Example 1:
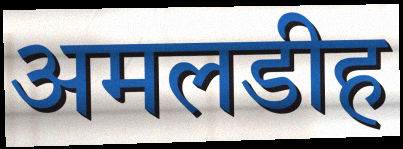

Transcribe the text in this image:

अमलडीह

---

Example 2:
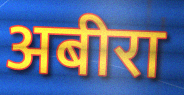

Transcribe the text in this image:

अबीरा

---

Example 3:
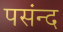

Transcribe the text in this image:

पसंन्द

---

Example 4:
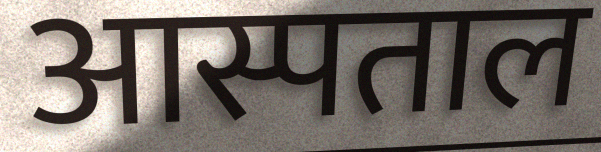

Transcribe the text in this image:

आस्पताल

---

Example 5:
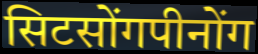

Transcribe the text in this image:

सिटसोंगपीनोंग